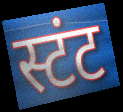
स्टंट